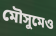
মৌসুমেও